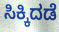
ಸಿಕ್ಕಿದಡೆ